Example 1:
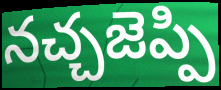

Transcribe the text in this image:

నచ్చజెప్పి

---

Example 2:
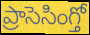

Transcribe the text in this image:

ప్రాసెసింగ్తో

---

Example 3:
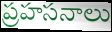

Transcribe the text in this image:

ప్రహసనాలు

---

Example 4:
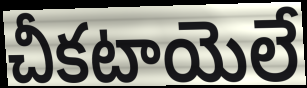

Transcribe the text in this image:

చీకటాయెలే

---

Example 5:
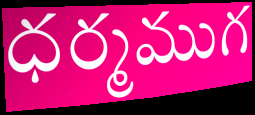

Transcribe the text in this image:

ధర్మముగ